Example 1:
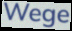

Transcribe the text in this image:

Wege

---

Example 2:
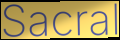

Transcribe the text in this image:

Sacral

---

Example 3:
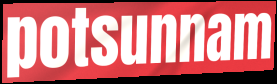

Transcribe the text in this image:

potsunnam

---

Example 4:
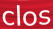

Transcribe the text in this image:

clos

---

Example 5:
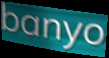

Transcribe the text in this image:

banyo